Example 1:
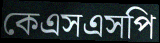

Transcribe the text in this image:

কেএসএসপি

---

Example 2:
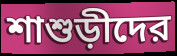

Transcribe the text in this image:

শাশুড়ীদের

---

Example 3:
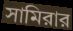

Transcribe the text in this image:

সামিরার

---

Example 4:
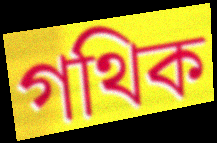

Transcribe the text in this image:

গথিক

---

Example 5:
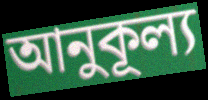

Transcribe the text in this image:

আনুকূল্য